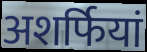
अशर्फियां